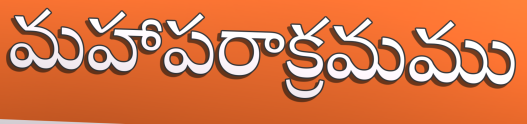
మహాపరాక్రమము